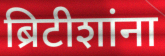
ब्रिटीशांना